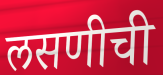
लसणीची